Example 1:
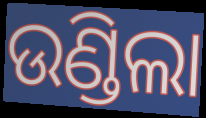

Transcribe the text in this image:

ଉଣ୍ଡିଲା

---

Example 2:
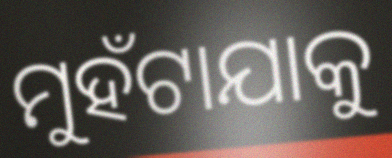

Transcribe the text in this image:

ମୁହଁଟାଯାକୁ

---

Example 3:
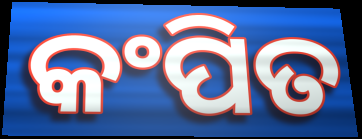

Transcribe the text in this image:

କଂପିତ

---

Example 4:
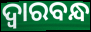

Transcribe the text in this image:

ଦ୍ବାରବନ୍ଧ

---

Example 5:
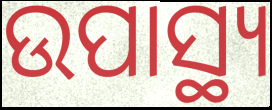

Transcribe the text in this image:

ଉପାସ୍ଥ୍ୟ